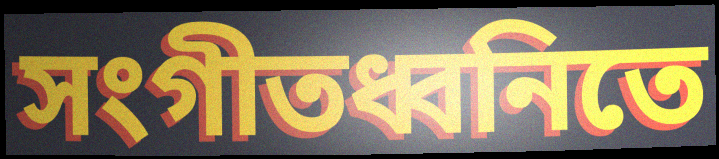
সংগীতধ্বনিতে